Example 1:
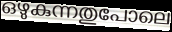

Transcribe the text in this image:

ഒഴുകുന്നതുപോലെ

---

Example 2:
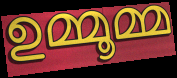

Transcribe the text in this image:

ഉമ്മൂമ്മ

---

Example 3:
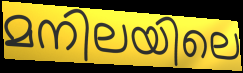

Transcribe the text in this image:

മനിലയിലെ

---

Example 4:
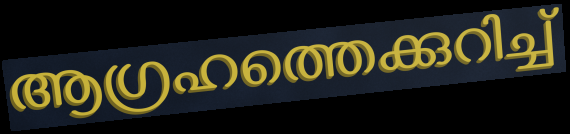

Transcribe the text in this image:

ആഗ്രഹത്തെക്കുറിച്ച്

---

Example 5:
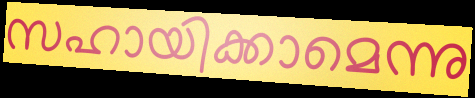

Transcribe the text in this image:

സഹായിക്കാമെന്നു